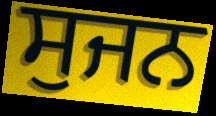
ਸੁਜਨ